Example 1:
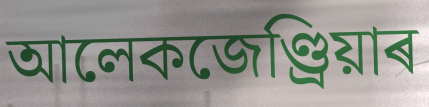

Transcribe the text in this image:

আলেকজেণ্ড্ৰিয়াৰ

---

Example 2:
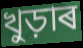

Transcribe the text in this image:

খুড়াৰ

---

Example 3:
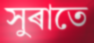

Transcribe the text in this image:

সুৰাতে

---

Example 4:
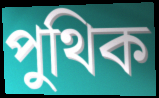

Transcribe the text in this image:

পুথিক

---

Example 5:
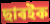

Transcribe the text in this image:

ছাৰইক